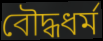
বৌদ্ধধর্ম